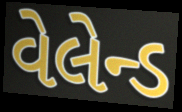
વેલેન્ડ